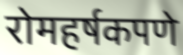
रोमहर्षकपणे